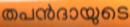
തപൻദായുടെ